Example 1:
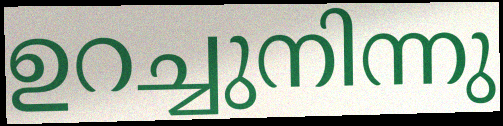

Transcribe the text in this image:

ഉറച്ചുനിന്നു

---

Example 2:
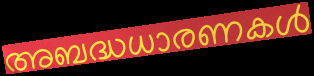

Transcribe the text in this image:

അബദ്ധധാരണകൾ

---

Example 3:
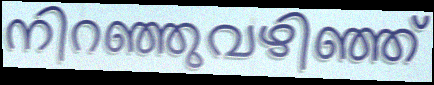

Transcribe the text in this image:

നിറഞ്ഞുവഴിഞ്ഞ്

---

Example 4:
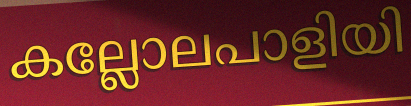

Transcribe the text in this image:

കല്ലോലപാളിയി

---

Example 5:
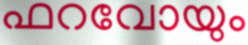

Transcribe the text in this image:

ഫറവോയും